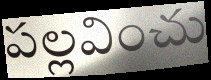
పల్లవించు